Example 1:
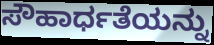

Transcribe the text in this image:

ಸೌಹಾರ್ಧತೆಯನ್ನು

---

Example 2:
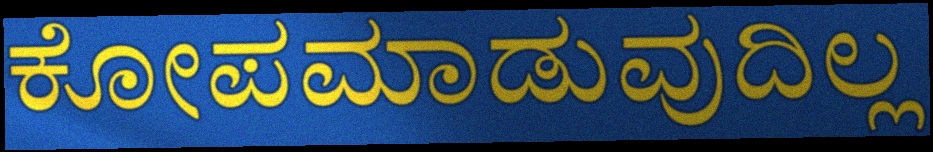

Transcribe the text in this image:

ಕೋಪಮಾಡುವುದಿಲ್ಲ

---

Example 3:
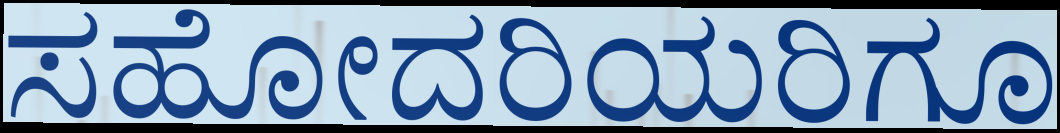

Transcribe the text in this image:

ಸಹೋದರಿಯರಿಗೂ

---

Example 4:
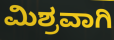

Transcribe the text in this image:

ಮಿಶ್ರವಾಗಿ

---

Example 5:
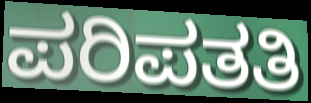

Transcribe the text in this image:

ಪರಿಪತತಿ